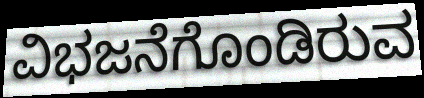
ವಿಭಜನೆಗೊಂಡಿರುವ